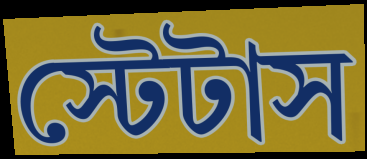
স্টেটাস